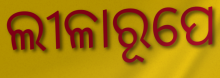
ଲୀଳାରୂପେ